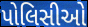
પોલિસીઓ